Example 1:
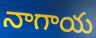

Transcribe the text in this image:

నాగాయ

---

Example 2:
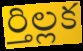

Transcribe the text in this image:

ర్తిల్లక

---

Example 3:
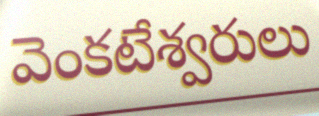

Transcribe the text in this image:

వెంకటేశ్వరులు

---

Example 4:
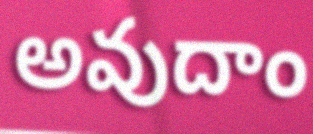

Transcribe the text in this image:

అవుదాం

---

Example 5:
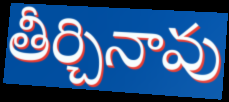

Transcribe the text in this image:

తీర్చినావు